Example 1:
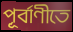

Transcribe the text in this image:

পূর্বাণীতে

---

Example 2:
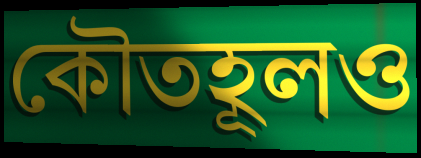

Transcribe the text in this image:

কৌতহূলও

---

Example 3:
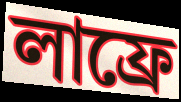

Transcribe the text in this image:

লাফ্রে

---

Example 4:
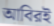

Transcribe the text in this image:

আবিরই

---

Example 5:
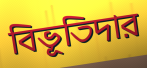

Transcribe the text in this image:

বিভূতিদার